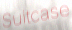
Suitcase